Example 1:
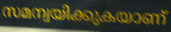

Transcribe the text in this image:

സമന്വയിക്കുകയാണ്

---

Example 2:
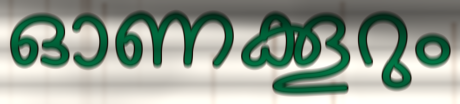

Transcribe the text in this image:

ഓണക്കൂറും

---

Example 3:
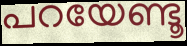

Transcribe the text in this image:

പറയേണ്ടൂ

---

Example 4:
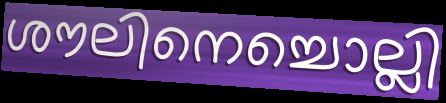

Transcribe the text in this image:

ശൗലിനെച്ചൊല്ലി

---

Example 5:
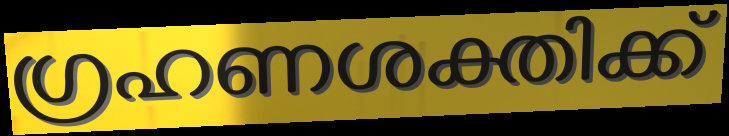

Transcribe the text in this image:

ഗ്രഹണശക്തിക്ക്